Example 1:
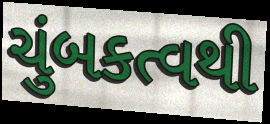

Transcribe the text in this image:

ચુંબકત્વથી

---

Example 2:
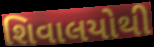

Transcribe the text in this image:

શિવાલયોથી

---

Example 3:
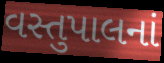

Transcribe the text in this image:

વસ્તુપાલનાં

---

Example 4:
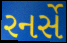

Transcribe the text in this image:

રનર્સે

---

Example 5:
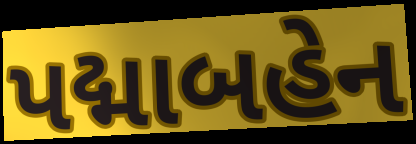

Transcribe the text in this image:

પદ્માબહેન